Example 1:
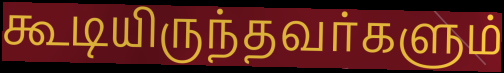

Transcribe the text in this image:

கூடியிருந்தவர்களும்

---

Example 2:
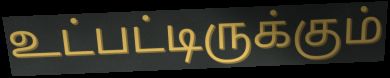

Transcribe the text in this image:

உட்பட்டிருக்கும்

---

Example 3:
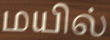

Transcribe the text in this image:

மயில்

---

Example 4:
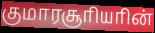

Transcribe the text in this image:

குமாரசூரியரின்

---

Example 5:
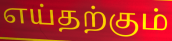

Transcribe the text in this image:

எய்தற்கும்